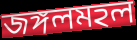
জঙ্গলমহল